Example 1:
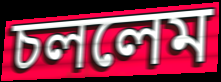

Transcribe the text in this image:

চললেম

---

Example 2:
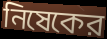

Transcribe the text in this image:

নিষেকের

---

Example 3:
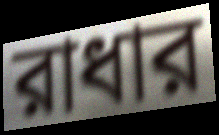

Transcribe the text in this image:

রাধার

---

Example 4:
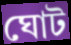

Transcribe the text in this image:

ঘোট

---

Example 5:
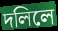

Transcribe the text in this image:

দলিলে